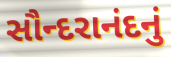
સૌન્દરાનંદનું